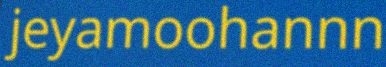
jeyamoohannn